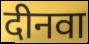
दीनवा